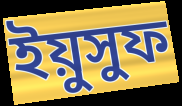
ইয়ুসুফ